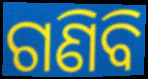
ଗଣିବି